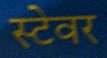
स्टेवर